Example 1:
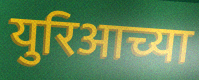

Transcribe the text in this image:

युरिआच्या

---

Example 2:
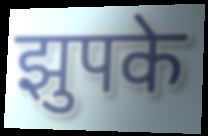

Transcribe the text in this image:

झुपके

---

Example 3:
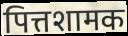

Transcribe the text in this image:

पित्तशामक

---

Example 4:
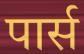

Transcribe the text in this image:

पार्स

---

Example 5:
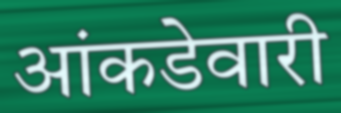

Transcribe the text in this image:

आंकडेवारी